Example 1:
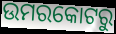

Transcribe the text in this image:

ଉମରକୋଟରୁ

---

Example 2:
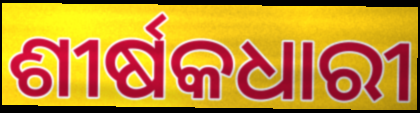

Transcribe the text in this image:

ଶୀର୍ଷକଧାରୀ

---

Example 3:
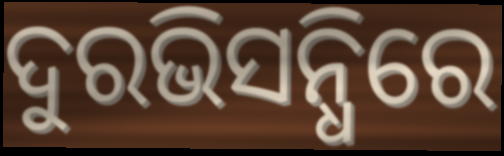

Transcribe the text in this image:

ଦୁରଭିସନ୍ଧିରେ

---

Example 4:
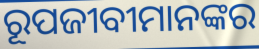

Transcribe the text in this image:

ରୂପଜୀବୀମାନଙ୍କର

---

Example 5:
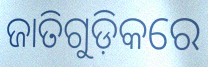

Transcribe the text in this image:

ଜାତିଗୁଡ଼ିକରେ